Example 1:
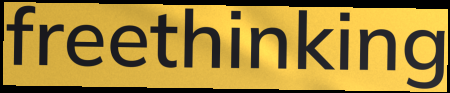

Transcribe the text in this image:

freethinking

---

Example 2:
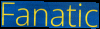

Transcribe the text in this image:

Fanatic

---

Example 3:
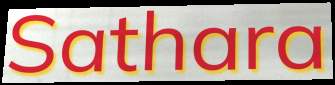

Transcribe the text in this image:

Sathara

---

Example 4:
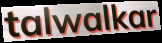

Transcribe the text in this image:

talwalkar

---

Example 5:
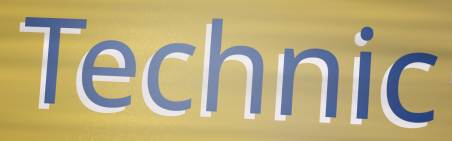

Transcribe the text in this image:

Technic